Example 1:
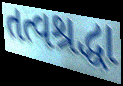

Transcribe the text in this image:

તત્વશ્રદ્ધા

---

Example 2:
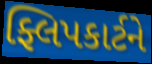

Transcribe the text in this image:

ફ્લિપકાર્ટને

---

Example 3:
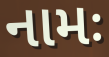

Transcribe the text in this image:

નામઃ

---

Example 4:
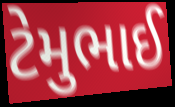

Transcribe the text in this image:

ટેમુભાઈ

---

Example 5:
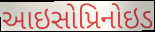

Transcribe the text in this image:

આઇસોપ્રિનોઇડ